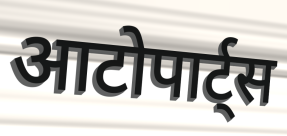
आटोपार्ट्स